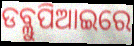
ଡବ୍ଲୁପିଆଇରେ